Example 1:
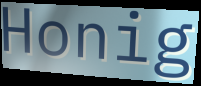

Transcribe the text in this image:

Honig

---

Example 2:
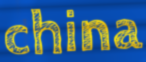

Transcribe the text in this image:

china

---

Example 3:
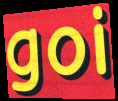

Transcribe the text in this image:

goi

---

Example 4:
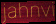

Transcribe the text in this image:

jahnvi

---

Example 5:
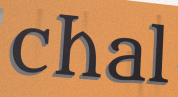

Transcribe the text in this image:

chal